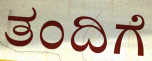
ತಂದಿಗೆ